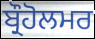
ਬ੍ਰੌਹੋਲਮਰ